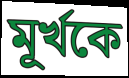
মূর্খকে